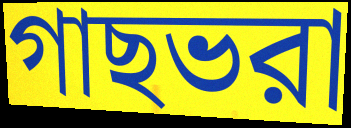
গাছভরা